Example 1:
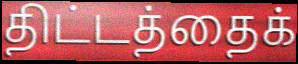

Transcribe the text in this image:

திட்டத்தைக்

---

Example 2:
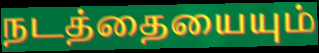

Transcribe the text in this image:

நடத்தையையும்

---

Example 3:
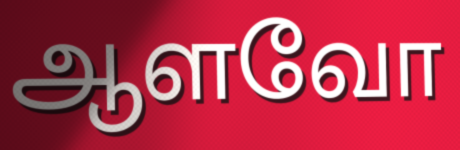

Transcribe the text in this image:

ஆளவோ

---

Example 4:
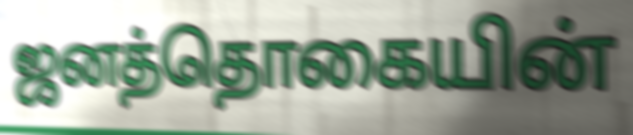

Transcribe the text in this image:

ஜனத்தொகையின்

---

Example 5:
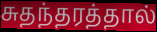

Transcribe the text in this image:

சுதந்தரத்தால்